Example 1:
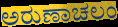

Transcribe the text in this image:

ಅರುಣಾಚಲಂ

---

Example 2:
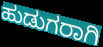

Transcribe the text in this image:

ಹುಡುಗರಾಗಿ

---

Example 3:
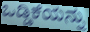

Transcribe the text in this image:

ಒಡ್ಡಿಕೆಯನ್ನು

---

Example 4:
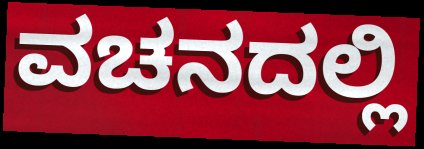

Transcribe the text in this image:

ವಚನದಲ್ಲಿ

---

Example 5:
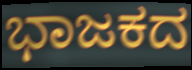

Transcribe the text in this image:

ಭಾಜಕದ